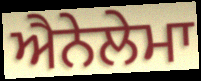
ਐਨੇਲੇਮਾ